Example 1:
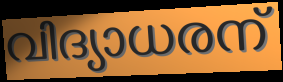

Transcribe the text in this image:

വിദ്യാധരന്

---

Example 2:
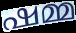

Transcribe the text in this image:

ഷമ്മ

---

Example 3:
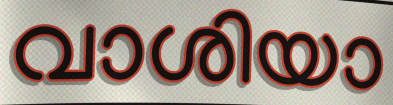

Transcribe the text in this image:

വാശിയാ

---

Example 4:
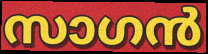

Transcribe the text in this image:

സാഗൻ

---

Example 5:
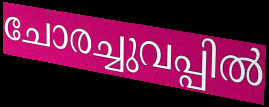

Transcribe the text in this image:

ചോരച്ചുവപ്പിൽ